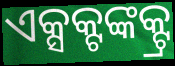
ଏକ୍ସକ୍ଟଙ୍କକ୍ଟ୍ର